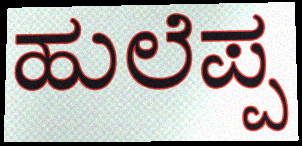
ಹುಲೆಪ್ಪ